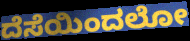
ದೆಸೆಯಿಂದಲೋ